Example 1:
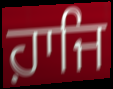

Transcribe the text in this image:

ਹ਼ਾਜਿ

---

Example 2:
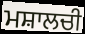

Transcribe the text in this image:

ਮਸ਼ਾਲਚੀ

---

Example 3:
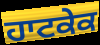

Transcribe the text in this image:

ਹਾਟਕੇਕ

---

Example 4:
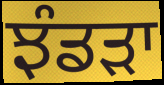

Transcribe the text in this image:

ਝੰਡੜਾ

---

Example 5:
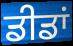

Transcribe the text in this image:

ਡੀਡਾਂ